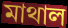
মাথাল